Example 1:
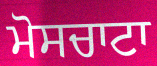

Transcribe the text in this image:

ਮੋਸਚਾਟਾ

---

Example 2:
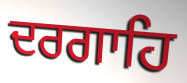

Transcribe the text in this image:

ਦਰਗਾਹਿ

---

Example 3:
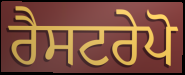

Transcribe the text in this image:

ਰੈਸਟਰੇਪੋ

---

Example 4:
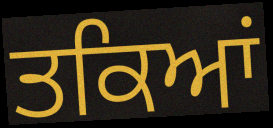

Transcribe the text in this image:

ਤਕਿਆਂ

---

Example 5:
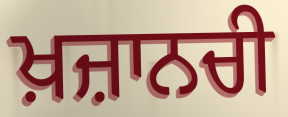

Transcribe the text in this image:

ਖ਼ਜ਼ਾਨਚੀ